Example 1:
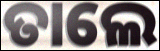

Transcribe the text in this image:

ତାଲେ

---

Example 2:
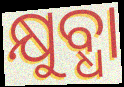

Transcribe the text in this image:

କ୍ଷୁବ୍ଧା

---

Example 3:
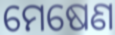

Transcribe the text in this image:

ମେଷେଣ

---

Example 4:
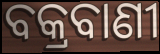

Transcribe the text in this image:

ବକ୍ରବାଣୀ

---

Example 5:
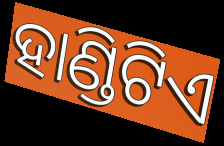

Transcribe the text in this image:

ହାଣ୍ଡିଟିଏ